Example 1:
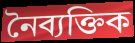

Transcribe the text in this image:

নৈব্যক্তিক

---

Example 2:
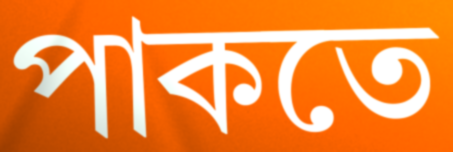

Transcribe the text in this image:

পাকতে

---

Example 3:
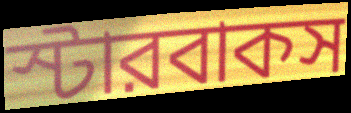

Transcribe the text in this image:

স্টারবাকস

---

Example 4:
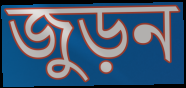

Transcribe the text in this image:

জুড়ন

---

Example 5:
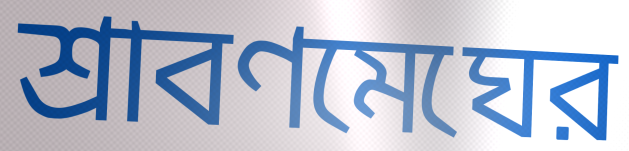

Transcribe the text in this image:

শ্রাবণমেঘের